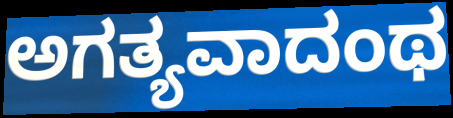
ಅಗತ್ಯವಾದಂಥ